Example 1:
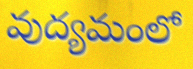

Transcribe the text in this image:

వుద్యమంలో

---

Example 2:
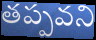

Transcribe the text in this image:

తప్పవని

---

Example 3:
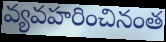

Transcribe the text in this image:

వ్యవహరించినంత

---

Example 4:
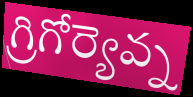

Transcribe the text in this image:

గ్రిగోర్యెవ్న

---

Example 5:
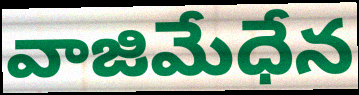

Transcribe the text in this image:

వాజిమేధేన